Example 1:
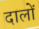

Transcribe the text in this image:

दालों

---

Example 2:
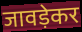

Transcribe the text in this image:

जावड़ेकर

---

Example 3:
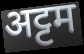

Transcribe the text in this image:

अट्टम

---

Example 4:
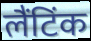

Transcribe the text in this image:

लैंटिंक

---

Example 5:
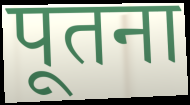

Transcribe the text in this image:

पूतना